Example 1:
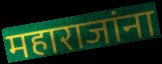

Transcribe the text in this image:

महाराजांना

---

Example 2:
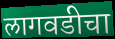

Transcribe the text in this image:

लागवडीचा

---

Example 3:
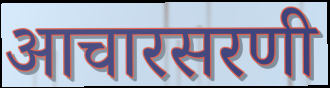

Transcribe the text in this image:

आचारसरणी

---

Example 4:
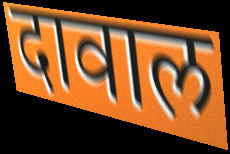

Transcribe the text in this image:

दावाल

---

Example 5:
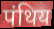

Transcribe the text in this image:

पंथिय